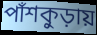
পাঁশকুড়ায়